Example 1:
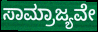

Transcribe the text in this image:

ಸಾಮ್ರಾಜ್ಯವೇ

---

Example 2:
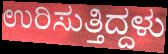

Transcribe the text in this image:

ಉರಿಸುತ್ತಿದ್ದಳು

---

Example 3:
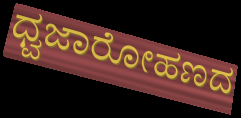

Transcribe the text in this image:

ಧ್ವಜಾರೋಹಣದ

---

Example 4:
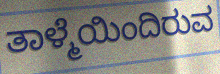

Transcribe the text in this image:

ತಾಳ್ಮೆಯಿಂದಿರುವ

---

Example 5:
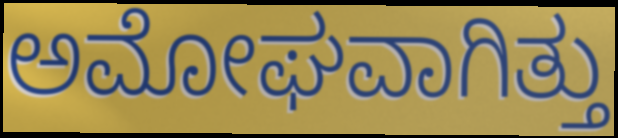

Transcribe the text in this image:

ಅಮೋಘವಾಗಿತ್ತು